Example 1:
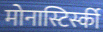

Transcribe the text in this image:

मोनास्टिर्स्की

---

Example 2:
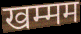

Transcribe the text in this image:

खम्मम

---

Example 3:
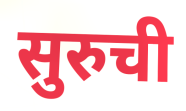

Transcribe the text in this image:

सुरुची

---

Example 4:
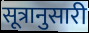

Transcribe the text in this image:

सूत्रानुसारी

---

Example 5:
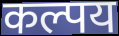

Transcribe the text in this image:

कल्पय